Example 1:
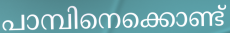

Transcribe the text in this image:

പാമ്പിനെക്കൊണ്ട്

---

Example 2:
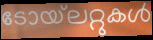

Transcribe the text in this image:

ടോയ്‌ലറ്റുകൾ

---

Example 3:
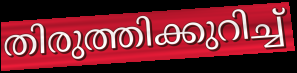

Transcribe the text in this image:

തിരുത്തിക്കുറിച്ച്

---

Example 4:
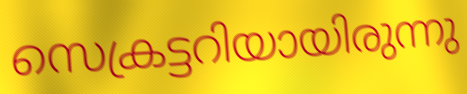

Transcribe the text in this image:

സെക്രട്ടറിയായിരുന്നു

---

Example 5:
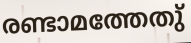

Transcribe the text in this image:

രണ്ടാമത്തേതു്